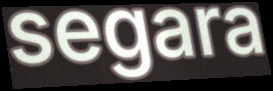
segara